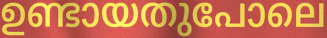
ഉണ്ടായതുപോലെ